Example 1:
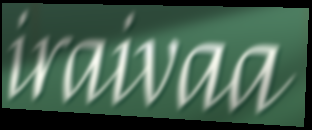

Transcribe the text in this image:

iraivaa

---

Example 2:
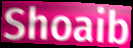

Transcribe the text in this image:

Shoaib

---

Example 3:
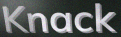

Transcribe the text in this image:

Knack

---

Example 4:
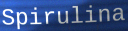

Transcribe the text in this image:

Spirulina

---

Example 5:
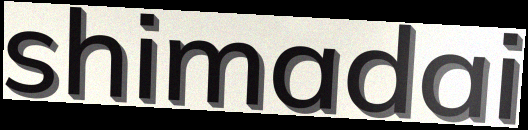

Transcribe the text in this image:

shimadai